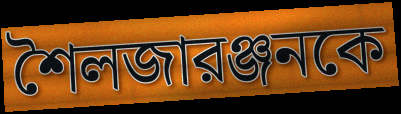
শৈলজারঞ্জনকে